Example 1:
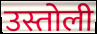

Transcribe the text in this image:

उस्तोली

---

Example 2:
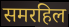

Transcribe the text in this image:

समरहिल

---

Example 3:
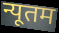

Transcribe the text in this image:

न्यूतम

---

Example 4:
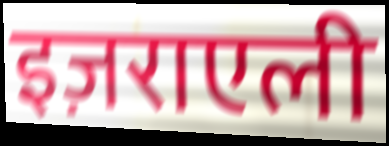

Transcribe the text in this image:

इज़राएली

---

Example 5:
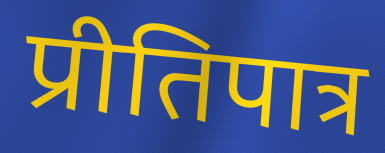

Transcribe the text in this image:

प्रीतिपात्र